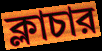
ক্লাচার